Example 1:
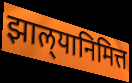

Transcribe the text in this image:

झाल्यानिमित्त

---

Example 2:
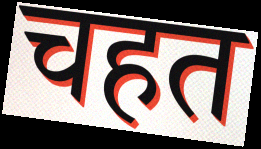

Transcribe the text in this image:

चहत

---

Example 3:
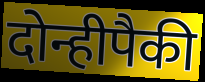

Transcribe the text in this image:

दोन्हीपैकी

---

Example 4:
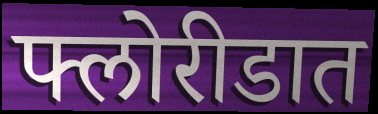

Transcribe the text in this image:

फ्लोरीडात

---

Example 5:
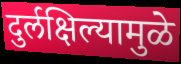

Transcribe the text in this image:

दुर्लक्षिल्यामुळे